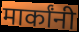
मार्कांनी